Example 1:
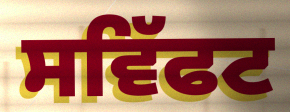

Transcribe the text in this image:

ਸਵਿੱਫਟ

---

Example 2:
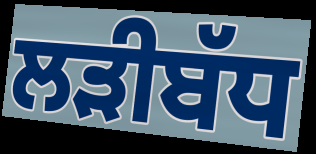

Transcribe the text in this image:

ਲੜੀਬੱਧ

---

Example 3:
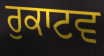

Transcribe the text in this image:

ਰੁਕਾਟਵ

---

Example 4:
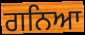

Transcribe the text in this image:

ਗਨਿਆ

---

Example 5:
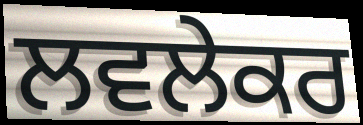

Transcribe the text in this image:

ਲਵਲੇਕਰ